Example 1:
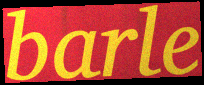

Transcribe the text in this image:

barle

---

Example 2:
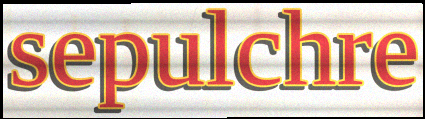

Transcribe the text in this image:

sepulchre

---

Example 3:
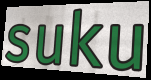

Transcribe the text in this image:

suku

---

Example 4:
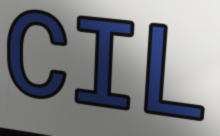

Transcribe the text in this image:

CIL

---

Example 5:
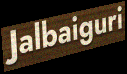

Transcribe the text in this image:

Jalbaiguri